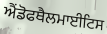
ਐਂਡੋਫਥੈਲਮਾਈਟਿਸ